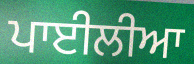
ਪਾਈਲੀਆ